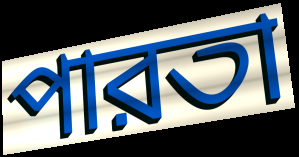
পারতা